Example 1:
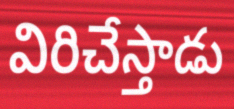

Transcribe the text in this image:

విరిచేస్తాడు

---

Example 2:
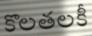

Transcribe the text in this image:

కొలతలకీ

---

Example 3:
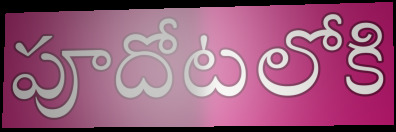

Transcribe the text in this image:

పూదోటలోకి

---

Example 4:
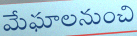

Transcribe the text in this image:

మేఘాలనుంచి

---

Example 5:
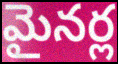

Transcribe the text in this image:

మైనర్ల